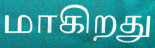
மாகிறது